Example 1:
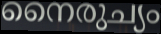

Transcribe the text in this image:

നൈരുച്യം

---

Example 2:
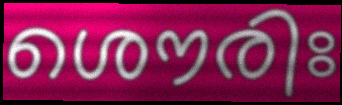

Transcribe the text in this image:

ശൌരിഃ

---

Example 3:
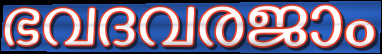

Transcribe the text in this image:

ഭവദവരജാം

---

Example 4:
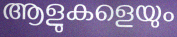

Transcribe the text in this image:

ആളുകളെയും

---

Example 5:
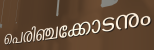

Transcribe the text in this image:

പെരിഞ്ചക്കോടനും